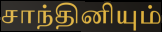
சாந்தினியும்